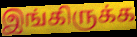
இங்கிருக்க